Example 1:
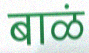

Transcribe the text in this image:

बाळं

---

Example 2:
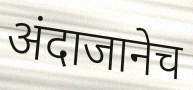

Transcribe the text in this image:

अंदाजानेच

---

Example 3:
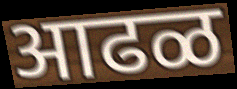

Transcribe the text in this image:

आढळ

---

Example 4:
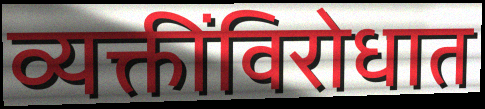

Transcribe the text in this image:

व्यक्तींविरोधात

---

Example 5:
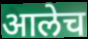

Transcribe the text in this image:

आलेच